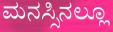
ಮನಸ್ಸಿನಲ್ಲೂ